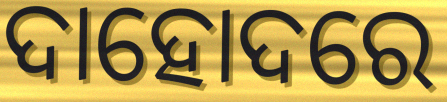
ଦାହୋଦରେ